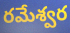
రమేశ్వర